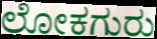
ಲೋಕಗುರು